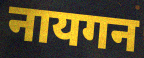
नायगन